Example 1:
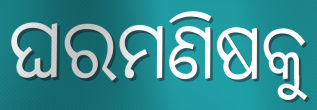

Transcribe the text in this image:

ଘରମଣିଷକୁ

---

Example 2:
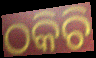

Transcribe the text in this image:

ଠକିଚି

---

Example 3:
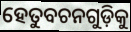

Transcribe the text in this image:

ହେତୁବଚନଗୁଡ଼ିକୁ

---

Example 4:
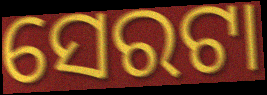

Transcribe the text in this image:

ସେରଟା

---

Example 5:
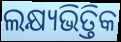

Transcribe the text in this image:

ଲକ୍ଷ୍ୟଭିତ୍ତିକ